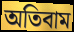
অতিবাম